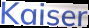
Kaiser